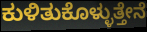
ಕುಳಿತುಕೊಳ್ಳುತ್ತೇನೆ